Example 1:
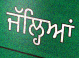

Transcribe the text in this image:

ਜੱਲ੍ਹਿਆਂ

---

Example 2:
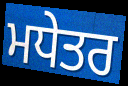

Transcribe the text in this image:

ਮਧੇਤਰ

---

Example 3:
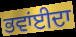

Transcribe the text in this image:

ਭਵਾਂਈਦਾ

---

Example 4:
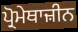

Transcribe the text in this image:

ਪ੍ਰੋਮੇਥਾਜ਼ੀਨ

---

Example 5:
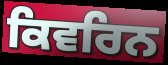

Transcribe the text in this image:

ਕਿਵਰਿਨ